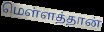
மெள்ளத்தான்